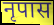
नृपास